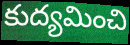
కుద్యమించి